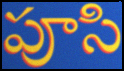
పూసి